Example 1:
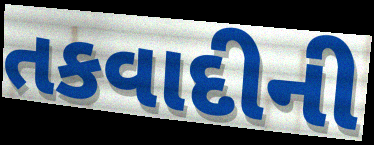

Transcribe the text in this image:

તકવાદીની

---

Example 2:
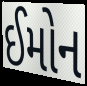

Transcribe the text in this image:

ઈમોન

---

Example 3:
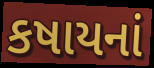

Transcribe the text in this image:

કષાયનાં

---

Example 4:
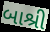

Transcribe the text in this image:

બાશ્રી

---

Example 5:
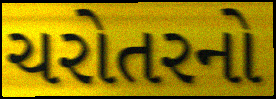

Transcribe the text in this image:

ચરોતરનો